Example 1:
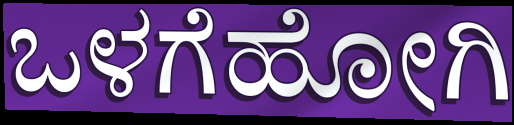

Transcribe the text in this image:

ಒಳಗೆಹೋಗಿ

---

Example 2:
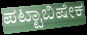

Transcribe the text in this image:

ಪಟ್ಟಾಬಿಷೇಕ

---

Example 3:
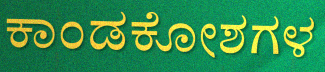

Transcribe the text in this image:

ಕಾಂಡಕೋಶಗಳ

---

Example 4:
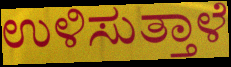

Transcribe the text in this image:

ಉಳಿಸುತ್ತಾಳೆ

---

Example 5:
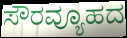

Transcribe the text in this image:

ಸೌರವ್ಯೂಹದ